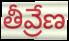
తీవ్రేణ